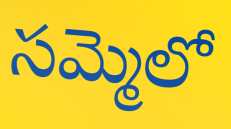
సమ్మెలో